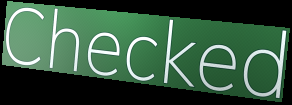
Checked